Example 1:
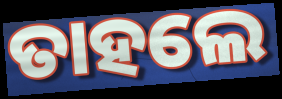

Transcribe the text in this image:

ତାହଲେ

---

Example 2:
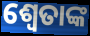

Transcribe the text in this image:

ଶ୍ୱେତାଙ୍କ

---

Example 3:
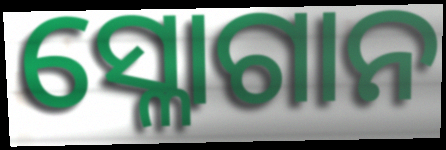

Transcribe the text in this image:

ସ୍ଳୋଗାନ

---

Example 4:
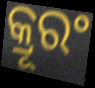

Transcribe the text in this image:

କ୍ରୂରଂ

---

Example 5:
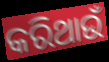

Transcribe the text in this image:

କରିଥାଉଁ